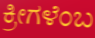
ಕ್ರೀಗಳೆಂಬ